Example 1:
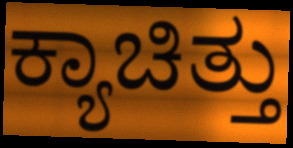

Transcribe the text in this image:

ಕ್ಯಾಚಿತ್ತು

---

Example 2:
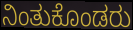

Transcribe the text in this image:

ನಿಂತುಕೊಂಡರು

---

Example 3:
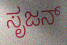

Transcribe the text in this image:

ಸೃಜನ್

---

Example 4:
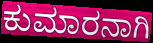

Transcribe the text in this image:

ಕುಮಾರನಾಗಿ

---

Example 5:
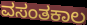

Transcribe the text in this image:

ವಸಂತಕಾಲ